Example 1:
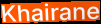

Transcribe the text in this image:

Khairane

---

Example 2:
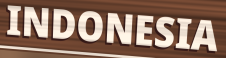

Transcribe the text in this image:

INDONESIA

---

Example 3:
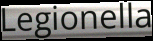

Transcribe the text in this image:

Legionella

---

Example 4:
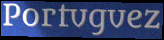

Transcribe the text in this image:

Portuguez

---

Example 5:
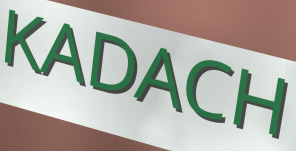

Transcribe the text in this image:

KADACH